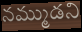
నమ్ముడని